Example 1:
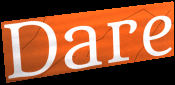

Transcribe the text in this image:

Dare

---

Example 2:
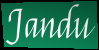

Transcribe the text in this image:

Jandu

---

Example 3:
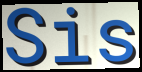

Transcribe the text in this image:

Sis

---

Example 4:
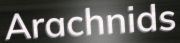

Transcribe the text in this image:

Arachnids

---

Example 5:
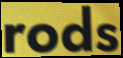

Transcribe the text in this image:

rods